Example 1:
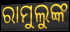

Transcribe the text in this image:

ରାମୁଲୁଙ୍କ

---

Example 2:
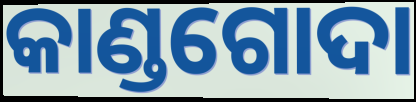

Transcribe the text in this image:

କାଣ୍ଡଗୋଦା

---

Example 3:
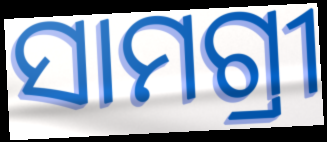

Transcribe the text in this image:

ସାମଗ୍ରୀ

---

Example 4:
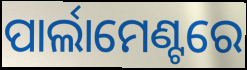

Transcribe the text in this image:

ପାର୍ଲାମେଣ୍ଟରେ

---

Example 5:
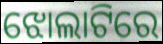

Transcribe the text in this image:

ଝୋଲାଟିରେ